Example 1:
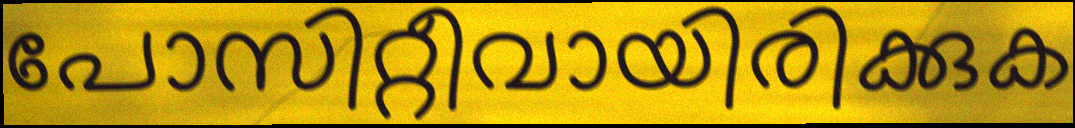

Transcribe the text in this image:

പോസിറ്റീവായിരിക്കുക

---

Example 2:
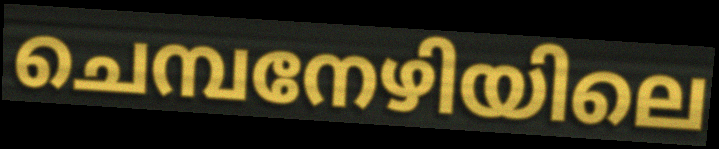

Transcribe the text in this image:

ചെമ്പനേഴിയിലെ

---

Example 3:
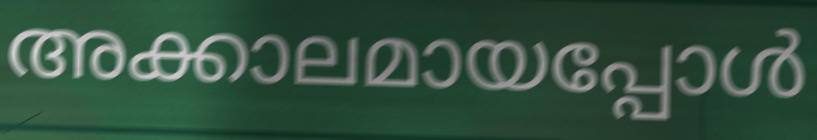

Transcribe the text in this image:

അക്കാലമായപ്പോൾ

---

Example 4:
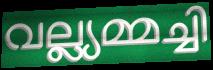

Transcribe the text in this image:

വല്ല്യമ്മച്ചി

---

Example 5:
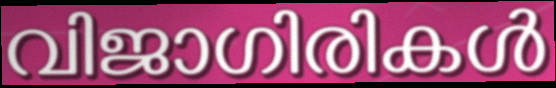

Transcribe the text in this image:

വിജാഗിരികൾ